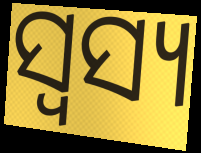
ସ୍ଵସ୍ଯ